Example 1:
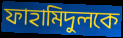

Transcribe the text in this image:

ফাহামিদুলকে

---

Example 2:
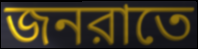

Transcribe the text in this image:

জনরাতে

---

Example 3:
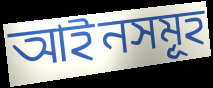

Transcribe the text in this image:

আইনসমূহ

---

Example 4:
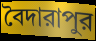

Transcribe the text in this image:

বৈদারাপুর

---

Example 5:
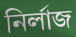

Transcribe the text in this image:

নির্লাজ